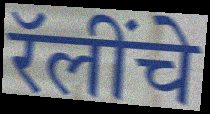
रॅलींचे